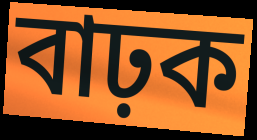
বাঢ়ক